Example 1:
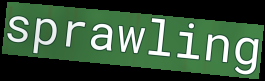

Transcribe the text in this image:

sprawling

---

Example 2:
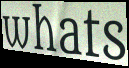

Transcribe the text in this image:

whats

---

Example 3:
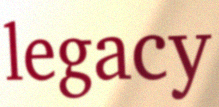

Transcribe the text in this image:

legacy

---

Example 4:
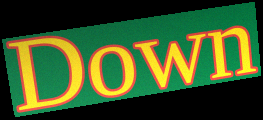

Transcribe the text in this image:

Down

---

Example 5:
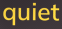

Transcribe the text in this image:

quiet